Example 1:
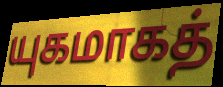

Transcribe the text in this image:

யுகமாகத்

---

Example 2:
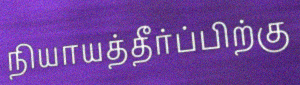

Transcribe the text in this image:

நியாயத்தீர்ப்பிற்கு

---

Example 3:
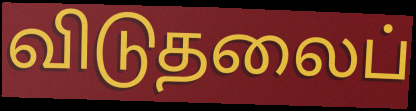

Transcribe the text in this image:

விடுதலைப்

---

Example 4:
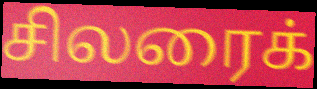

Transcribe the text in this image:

சிலரைக்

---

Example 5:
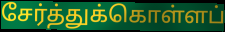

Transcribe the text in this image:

சேர்த்துக்கொள்ளப்